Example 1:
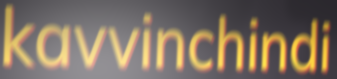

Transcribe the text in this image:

kavvinchindi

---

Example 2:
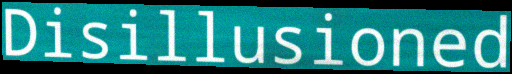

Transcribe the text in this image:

Disillusioned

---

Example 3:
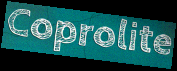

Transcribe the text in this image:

Coprolite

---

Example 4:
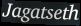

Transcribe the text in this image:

Jagatseth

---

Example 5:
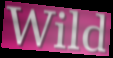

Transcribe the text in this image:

Wild